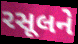
રસૂલને